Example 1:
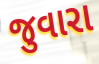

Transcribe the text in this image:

જુવારા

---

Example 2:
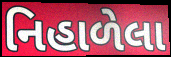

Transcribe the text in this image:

નિહાળેલા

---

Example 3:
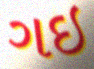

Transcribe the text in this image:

ગઇ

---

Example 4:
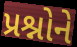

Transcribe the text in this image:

પ્રશ્નોને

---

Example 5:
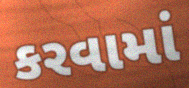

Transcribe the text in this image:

કરવામાં